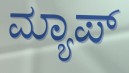
ಮ್ಯಾಪ್